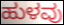
ಹುಳವು